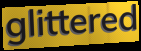
glittered